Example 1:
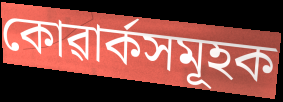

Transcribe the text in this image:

কোৱাৰ্কসমূহক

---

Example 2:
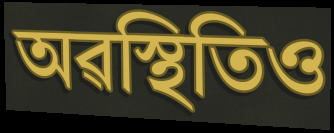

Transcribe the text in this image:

অৱস্থিতিও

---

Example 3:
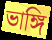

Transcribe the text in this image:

ভাঙ্গি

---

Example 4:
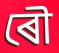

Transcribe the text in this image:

ৰৌ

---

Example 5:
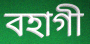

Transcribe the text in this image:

বহাগী